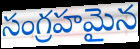
సంగ్రహమైన